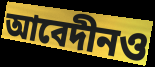
আবেদীনও